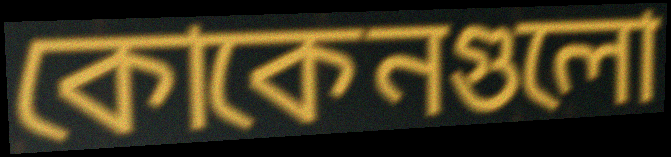
কোকেনগুলো